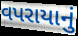
વપરાયાનું